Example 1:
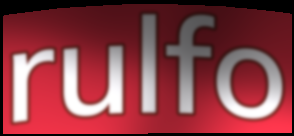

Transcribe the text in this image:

rulfo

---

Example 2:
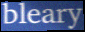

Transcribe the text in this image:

bleary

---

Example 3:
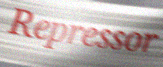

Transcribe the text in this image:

Repressor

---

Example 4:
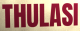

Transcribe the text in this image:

THULASI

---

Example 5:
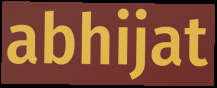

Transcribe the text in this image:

abhijat